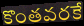
కొంతవరకే